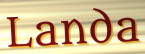
Landa